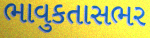
ભાવુકતાસભર